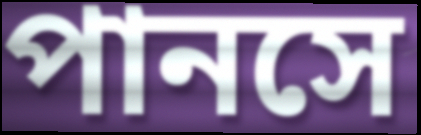
পানসে